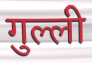
गुल्ली